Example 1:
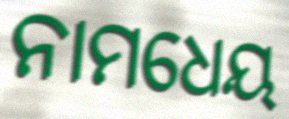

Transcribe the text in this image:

ନାମଧେୟ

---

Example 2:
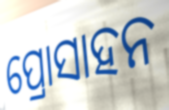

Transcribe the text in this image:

ପ୍ରୋସାହନ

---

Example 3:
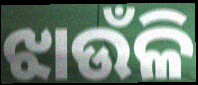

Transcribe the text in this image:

ଝାଉଁଳି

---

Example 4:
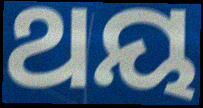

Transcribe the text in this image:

ଥୟ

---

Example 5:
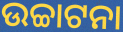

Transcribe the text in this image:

ଉଚ୍ଚାଟନା